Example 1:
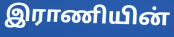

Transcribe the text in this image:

இராணியின்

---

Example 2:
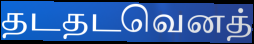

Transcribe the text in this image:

தடதடவெனத்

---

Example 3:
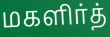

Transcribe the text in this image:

மகளிர்த்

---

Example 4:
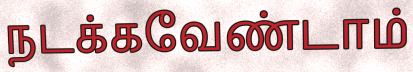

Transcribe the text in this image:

நடக்கவேண்டாம்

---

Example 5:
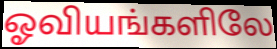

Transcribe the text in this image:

ஓவியங்களிலே